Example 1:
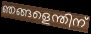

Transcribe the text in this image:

ഞങ്ങളെന്തിന്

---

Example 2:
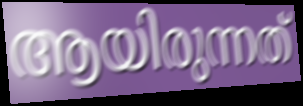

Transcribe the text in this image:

ആയിരുന്നത്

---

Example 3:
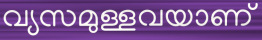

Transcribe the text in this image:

വ്യസമുള്ളവയാണ്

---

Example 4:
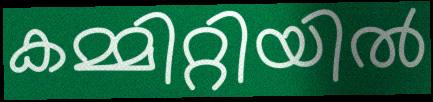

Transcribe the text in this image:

കമ്മിറ്റിയിൽ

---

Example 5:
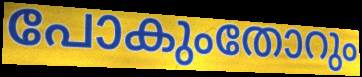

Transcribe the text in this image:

പോകുംതോറും